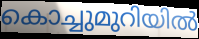
കൊച്ചുമുറിയിൽ